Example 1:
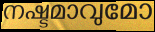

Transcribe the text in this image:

നഷ്ടമാവുമോ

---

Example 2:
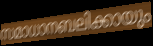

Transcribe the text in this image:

സമാധാനബലിക്കായും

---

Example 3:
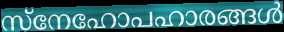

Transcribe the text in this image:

സ്നേഹോപഹാരങ്ങൾ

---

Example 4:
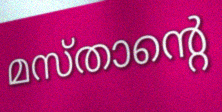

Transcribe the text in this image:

മസ്താന്റെ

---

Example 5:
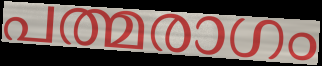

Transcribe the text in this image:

പത്മരാഗം